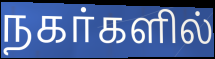
நகர்களில்